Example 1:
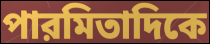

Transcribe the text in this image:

পারমিতাদিকে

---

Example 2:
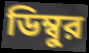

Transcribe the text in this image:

ডিম্বুর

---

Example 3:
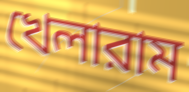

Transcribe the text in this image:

খেলারাম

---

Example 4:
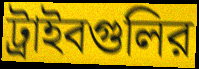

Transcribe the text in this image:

ট্রাইবগুলির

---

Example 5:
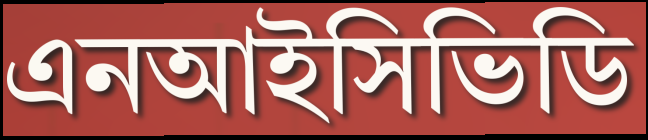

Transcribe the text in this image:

এনআইসিভিডি